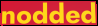
nodded